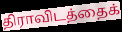
திராவிடத்தைக்